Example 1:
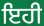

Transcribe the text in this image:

ਇਹੀ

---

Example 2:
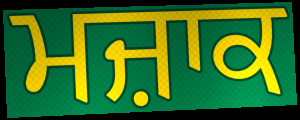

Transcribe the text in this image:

ਮਜ਼ਾਕ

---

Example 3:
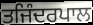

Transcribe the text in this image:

ਤਜਿੰਦਰਪਾਲ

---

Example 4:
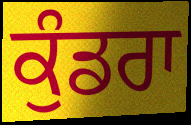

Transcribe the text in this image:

ਕੁੰਡਰਾ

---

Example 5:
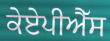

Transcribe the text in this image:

ਕੇਏਪੀਐੱਸ